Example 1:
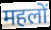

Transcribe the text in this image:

महलों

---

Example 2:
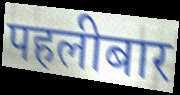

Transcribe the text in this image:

पहलीबार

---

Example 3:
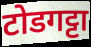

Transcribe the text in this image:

टोडगट्टा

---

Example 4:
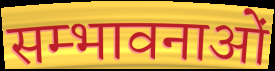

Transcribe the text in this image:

सम्भावनाओं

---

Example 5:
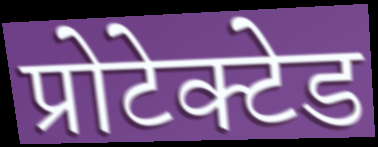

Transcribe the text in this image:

प्रोटेक्टेड